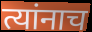
त्यांनाच